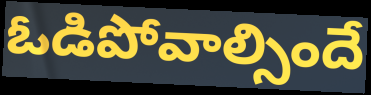
ఓడిపోవాల్సిందే